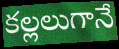
కల్లలుగానే